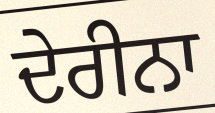
ਦੇਰੀਨਾ